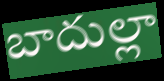
బాదుల్లా